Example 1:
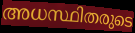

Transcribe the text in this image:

അധസ്ഥിതരുടെ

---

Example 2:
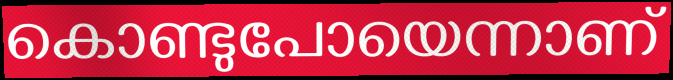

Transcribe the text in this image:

കൊണ്ടുപോയെന്നാണ്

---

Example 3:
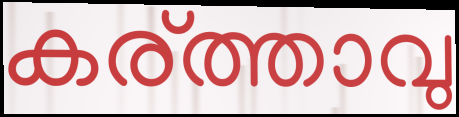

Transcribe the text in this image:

കര്ത്താവു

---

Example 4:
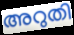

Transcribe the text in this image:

അറുതി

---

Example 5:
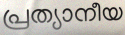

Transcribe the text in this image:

പ്രത്യാനീയ